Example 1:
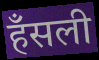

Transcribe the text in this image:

हँसली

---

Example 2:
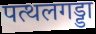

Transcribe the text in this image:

पत्थलगड्डा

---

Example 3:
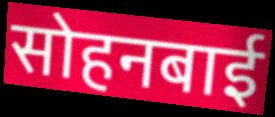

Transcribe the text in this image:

सोहनबाई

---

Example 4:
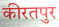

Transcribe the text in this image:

कीरतपुर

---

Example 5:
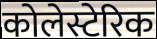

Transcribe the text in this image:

कोलेस्टेरिक